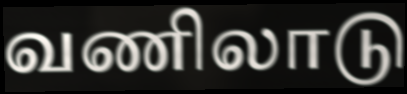
வணிலாடு